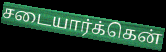
சடையார்க்கென்